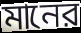
মানের